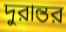
দুরান্তর